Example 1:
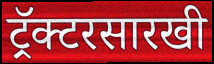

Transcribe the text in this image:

ट्रॅक्टरसारखी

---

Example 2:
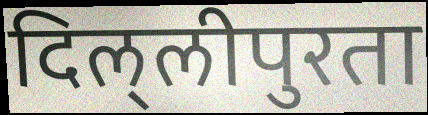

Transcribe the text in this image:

दिल्लीपुरता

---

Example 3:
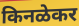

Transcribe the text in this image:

किनळेकर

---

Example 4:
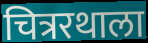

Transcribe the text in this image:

चित्ररथाला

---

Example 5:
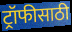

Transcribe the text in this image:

ट्रॉफीसाठी